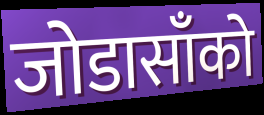
जोडासाँको